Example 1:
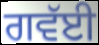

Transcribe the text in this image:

ਗਵੱਈ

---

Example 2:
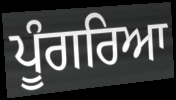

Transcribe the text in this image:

ਪੂੰਗਰਿਆ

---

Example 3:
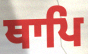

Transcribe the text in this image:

ਥਾਪਿ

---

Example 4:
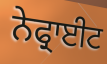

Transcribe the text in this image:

ਨੇਫ੍ਰਾਈਟ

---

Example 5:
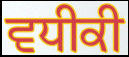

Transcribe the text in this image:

ਵਧੀਕੀ